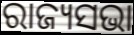
ରାଜ୍ୟସଭା